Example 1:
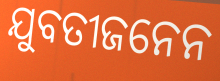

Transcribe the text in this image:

ଯୁବତୀଜନେନ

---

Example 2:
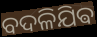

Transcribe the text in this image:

ବଦଳିଯିଵ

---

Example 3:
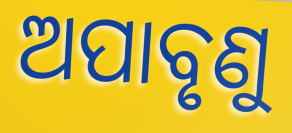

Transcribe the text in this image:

ଅପାବୃଣୁ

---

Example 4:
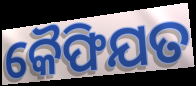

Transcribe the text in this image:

କୈଫିଯତ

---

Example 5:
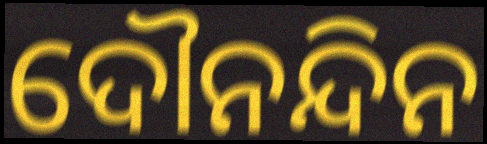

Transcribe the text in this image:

ଦୌନନ୍ଦିନ